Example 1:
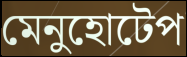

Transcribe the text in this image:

মেনুহোটেপ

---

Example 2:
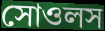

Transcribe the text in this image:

সোওলস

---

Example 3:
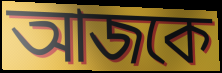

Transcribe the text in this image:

আজকে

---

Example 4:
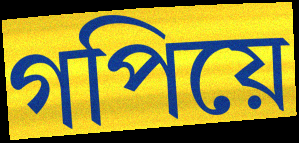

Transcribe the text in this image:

গপিয়ে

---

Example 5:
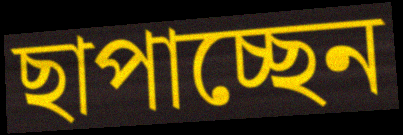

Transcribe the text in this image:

ছাপাচ্ছেন